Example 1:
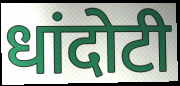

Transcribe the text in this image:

धांदोटी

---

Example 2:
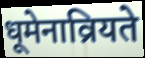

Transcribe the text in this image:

धूमेनाव्रियते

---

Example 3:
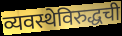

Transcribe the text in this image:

व्यवस्थेविरुद्धची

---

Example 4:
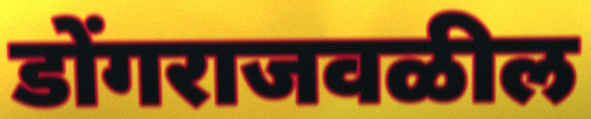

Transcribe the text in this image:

डोंगराजवळील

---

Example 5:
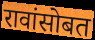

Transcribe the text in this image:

रावांसोबत